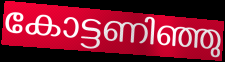
കോട്ടണിഞ്ഞു